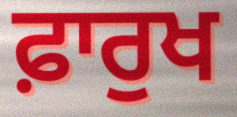
ਫ਼ਾਰੁਖ